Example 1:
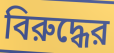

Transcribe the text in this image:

বিরুদ্ধের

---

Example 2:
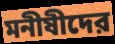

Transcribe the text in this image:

মনীষীদের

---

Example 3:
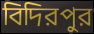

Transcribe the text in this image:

বিদিরপুর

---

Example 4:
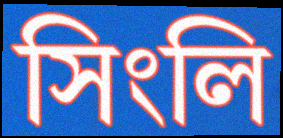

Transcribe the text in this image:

সিংলি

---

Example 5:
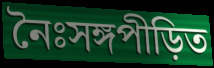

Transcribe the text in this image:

নৈঃসঙ্গপীড়িত